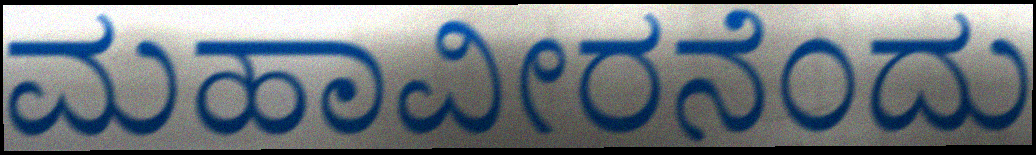
ಮಹಾವೀರನೆಂದು